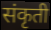
संकृती